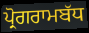
ਪ੍ਰੋਗਰਾਮਬੱਧ